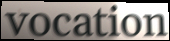
vocation